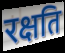
रक्षति